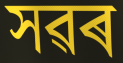
সৱৰ